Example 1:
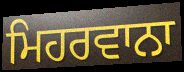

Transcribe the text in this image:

ਮਿਹਰਵਾਨਾ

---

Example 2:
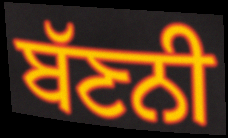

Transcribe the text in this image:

ਬੱਣਨੀ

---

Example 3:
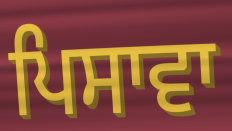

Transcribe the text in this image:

ਪਿਸਾਵਾ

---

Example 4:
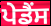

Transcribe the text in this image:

ਪੇਡੈਂਸ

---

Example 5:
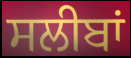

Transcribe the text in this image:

ਸਲੀਬਾਂ